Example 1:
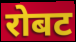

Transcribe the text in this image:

रोबट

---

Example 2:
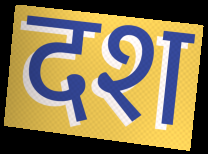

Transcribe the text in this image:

दश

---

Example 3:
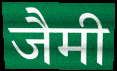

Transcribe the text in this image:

जैमी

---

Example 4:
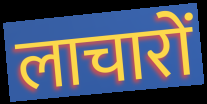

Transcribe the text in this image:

लाचारों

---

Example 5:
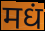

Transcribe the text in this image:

मधं